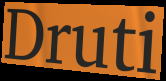
Druti